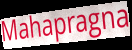
Mahapragna